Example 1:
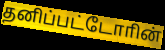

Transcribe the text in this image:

தனிப்பட்டோரின்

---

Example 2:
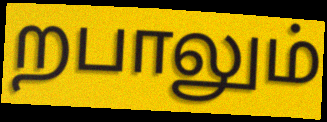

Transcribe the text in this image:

றபாலும்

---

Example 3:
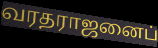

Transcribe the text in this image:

வரதராஜனைப்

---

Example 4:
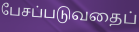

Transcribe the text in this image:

பேசப்படுவதைப்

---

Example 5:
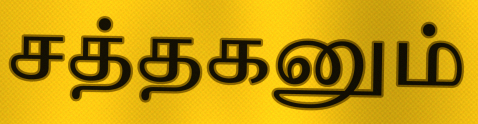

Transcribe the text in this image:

சத்தகனும்